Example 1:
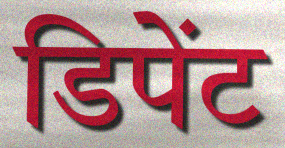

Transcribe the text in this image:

डिपेंट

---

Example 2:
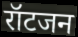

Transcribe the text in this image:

रॉटजन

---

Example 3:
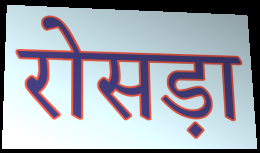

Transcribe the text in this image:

रोसड़ा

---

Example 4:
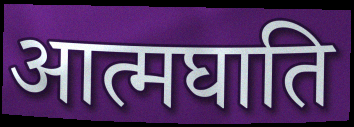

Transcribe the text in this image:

आत्मघाति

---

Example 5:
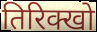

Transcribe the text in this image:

तिरिक्खो